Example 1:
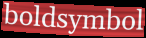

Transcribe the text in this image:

boldsymbol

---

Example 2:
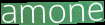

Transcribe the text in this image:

amone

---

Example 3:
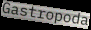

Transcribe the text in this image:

Gastropoda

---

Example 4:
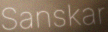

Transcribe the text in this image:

Sanskar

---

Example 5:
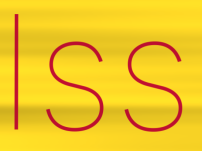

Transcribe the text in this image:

Iss